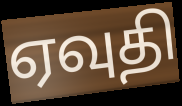
ஏவுதி